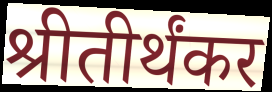
श्रीतीर्थंकर